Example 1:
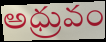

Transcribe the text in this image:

అధ్రువం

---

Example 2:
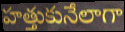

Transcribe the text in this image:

హత్తుకునేలాగా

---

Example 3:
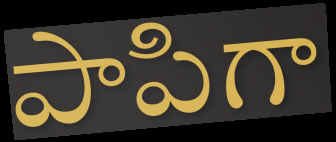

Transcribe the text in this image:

పాపిగా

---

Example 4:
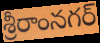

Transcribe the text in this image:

శ్రీరాంనగర్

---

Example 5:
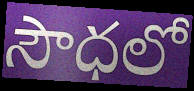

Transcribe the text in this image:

సౌధలో